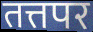
तत्तपर